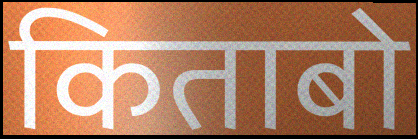
किताबो